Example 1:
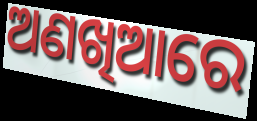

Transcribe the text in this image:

ଅଣଖିଆରେ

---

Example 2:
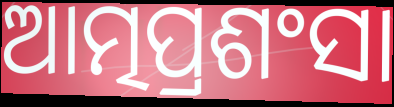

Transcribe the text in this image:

ଆତ୍ମପ୍ରଶଂସା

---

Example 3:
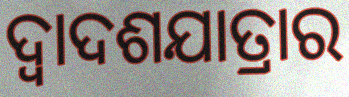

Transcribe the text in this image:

ଦ୍ୱାଦଶଯାତ୍ରାର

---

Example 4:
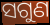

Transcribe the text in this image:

ସଗୁଣ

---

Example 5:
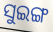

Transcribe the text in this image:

ସୁଇଙ୍ଗ